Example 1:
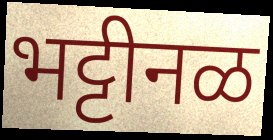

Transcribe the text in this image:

भट्टीनळ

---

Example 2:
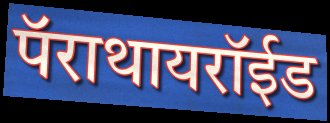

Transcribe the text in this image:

पॅराथायरॉईड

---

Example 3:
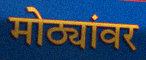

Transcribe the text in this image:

मोठ्यांवर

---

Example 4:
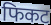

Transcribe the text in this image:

फिकट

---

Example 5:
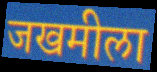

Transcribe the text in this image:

जखमीला